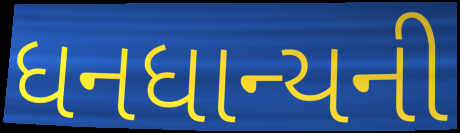
ધનધાન્યની